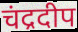
चंद्रदीप